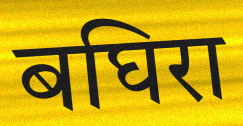
बघिरा